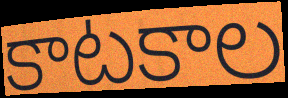
కాటకాల